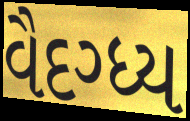
વૈદગ્ધ્ય